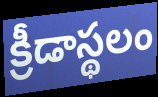
క్రీడాస్థలం